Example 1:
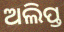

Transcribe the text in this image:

ଅଲିପ୍ତ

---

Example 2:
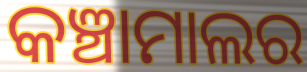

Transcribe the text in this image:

କଞ୍ଚାମାଲର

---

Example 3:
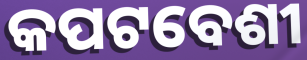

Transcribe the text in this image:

କପଟବେଶୀ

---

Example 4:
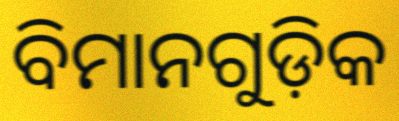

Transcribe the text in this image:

ବିମାନଗୁଡ଼ିକ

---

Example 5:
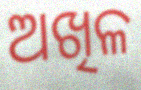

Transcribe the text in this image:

ଅଖିଳ